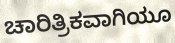
ಚಾರಿತ್ರಿಕವಾಗಿಯೂ